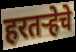
हरतऱ्हेचे